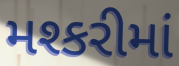
મશ્કરીમાં